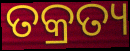
ତକ୍ରତ୍ୟ